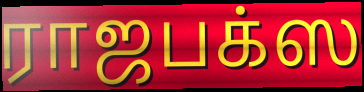
ராஜபக்ஸ